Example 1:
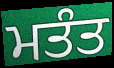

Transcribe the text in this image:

ਮਤੰਤ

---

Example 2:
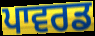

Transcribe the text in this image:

ਪਾਵਰਡ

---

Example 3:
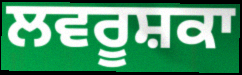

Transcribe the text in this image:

ਲਵਰੂਸ਼ਕਾ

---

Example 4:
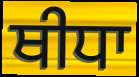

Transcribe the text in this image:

ਥੀਧਾ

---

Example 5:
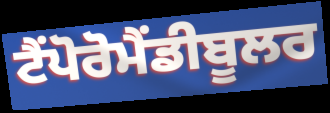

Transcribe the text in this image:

ਟੈਂਪੋਰੋਮੈਂਡੀਬੂਲਰ